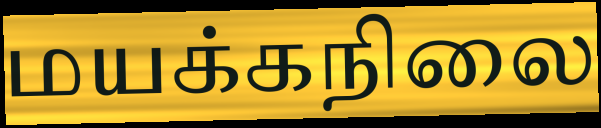
மயக்கநிலை